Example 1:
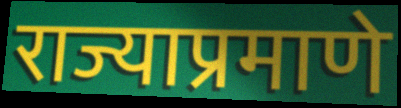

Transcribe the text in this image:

राज्याप्रमाणे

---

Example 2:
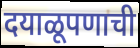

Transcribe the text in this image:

दयाळूपणाची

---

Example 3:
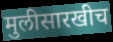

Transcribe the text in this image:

मुलीसारखीच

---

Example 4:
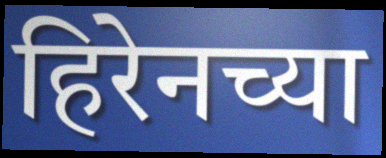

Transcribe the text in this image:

हिरेनच्या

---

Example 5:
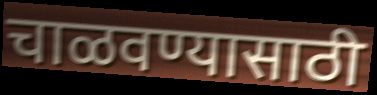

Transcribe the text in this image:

चाळवण्यासाठी